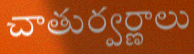
చాతుర్వర్ణాలు